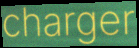
charger